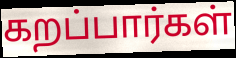
கறப்பார்கள்